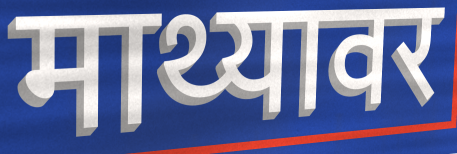
माथ्यावर